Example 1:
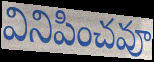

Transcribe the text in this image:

వినిపించవూ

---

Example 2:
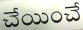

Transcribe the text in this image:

చేయించే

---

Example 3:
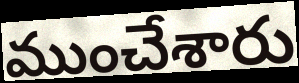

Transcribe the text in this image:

ముంచేశారు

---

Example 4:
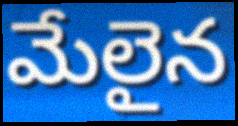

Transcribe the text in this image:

మేలైన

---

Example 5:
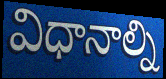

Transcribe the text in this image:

విధానాల్ని